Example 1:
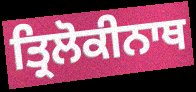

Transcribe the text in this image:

ਤ੍ਰਿਲੋਕੀਨਾਥ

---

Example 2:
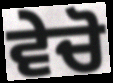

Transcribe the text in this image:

ਵੇਚੋ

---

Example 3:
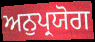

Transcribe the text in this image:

ਅਨੁਪ੍ਰਯੋਗ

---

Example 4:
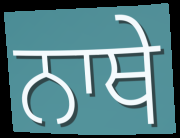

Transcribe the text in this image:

ਨਾਥੇ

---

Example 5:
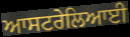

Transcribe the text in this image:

ਆਸਟਰੇਲਿਆਈ